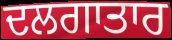
ਦਲਗਾਤਾਰ